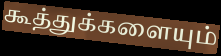
கூத்துக்களையும்